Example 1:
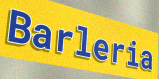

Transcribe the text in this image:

Barleria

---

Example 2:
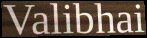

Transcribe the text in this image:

Valibhai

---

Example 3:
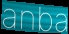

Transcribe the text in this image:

anba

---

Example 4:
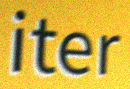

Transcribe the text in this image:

iter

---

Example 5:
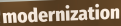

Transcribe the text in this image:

modernization